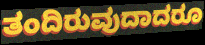
ತಂದಿರುವುದಾದರೂ